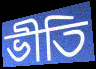
ভীতি